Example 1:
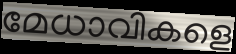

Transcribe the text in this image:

മേധാവികളെ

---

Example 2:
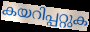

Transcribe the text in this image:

കയറിപ്പറ്റുക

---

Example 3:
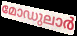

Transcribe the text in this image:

മോഡുലാർ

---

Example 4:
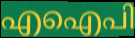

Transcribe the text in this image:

എഐപി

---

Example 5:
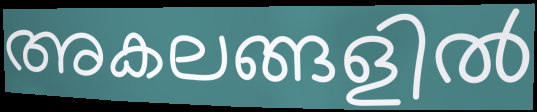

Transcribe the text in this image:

അകലങ്ങളിൽ